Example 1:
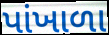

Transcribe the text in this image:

પાંખાળા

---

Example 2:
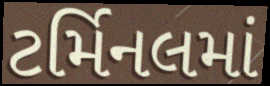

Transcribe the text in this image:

ટર્મિનલમાં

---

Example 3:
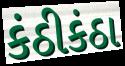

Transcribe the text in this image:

કંઠીકંઠા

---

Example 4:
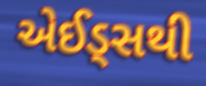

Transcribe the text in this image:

એઈડ્સથી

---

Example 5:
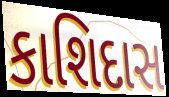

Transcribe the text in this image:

કાશિદાસ